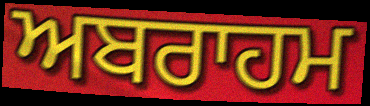
ਅਬਰਾਹਮ